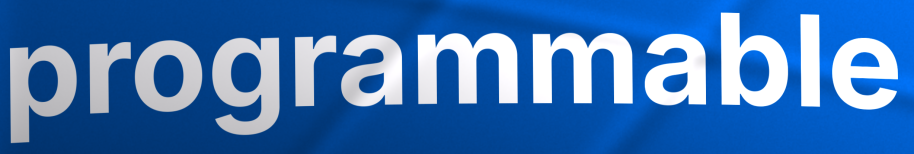
programmable